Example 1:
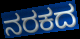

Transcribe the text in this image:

ನರಕದ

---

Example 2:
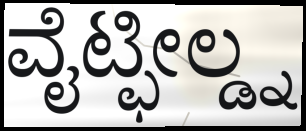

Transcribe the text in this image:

ವೈಟ್ಫೀಲ್ಡ್ನ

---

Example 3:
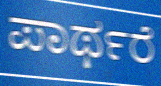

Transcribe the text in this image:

ಪಾರ್ಥರೆ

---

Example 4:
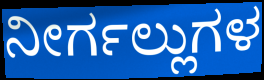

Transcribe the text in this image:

ನೀರ್ಗಲ್ಲುಗಳ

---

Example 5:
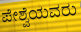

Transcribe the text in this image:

ಪೇಶ್ವೆಯವರು